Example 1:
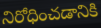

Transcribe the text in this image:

నిరోధించడానికి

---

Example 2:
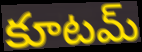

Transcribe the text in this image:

కూటమ్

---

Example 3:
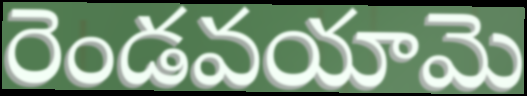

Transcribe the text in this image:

రెండవయామె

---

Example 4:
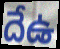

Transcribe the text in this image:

దేఉ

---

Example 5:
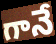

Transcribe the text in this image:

గానే